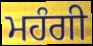
ਮਹੰਗੀ